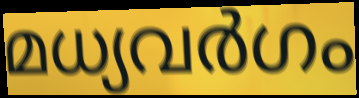
മധ്യവർഗം